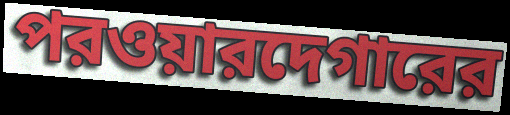
পরওয়ারদেগারের